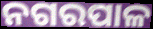
ନଗରପାଳ